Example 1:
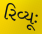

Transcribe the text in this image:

રિવ્યૂઃ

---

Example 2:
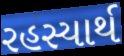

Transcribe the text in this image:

રહસ્યાર્થ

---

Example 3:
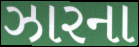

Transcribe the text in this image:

ઝારના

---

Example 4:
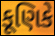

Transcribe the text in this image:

કૂણિકે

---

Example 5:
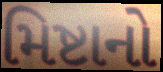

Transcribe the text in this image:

મિષ્ટાનો